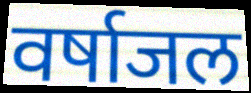
वर्षाजल